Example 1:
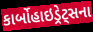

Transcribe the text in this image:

કાર્બોહાઇડ્રેટ્સના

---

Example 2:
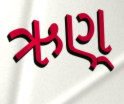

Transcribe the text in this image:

ઋણ્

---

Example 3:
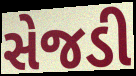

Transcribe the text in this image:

સેજડી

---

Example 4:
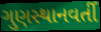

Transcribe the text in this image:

ગુણસ્થાનવર્તી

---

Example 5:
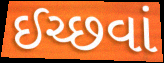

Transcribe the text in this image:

ઈચ્છવાં